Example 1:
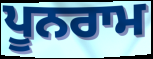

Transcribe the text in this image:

ਪੂਨਰਾਮ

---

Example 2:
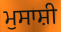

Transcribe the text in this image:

ਮੁਸਾਸ਼ੀ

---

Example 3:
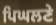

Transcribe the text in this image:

ਪਿਘਲਣੇ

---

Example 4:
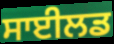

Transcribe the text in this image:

ਸਾਈਲਡ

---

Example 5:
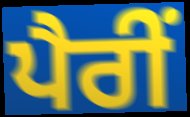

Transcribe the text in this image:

ਪੈਰੀਂ